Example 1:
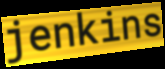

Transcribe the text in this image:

jenkins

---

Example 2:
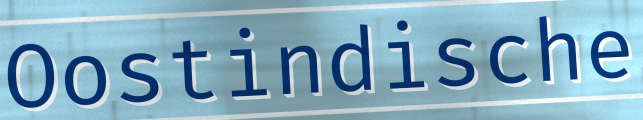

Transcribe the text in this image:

Oostindische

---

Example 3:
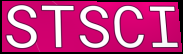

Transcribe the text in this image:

STSCI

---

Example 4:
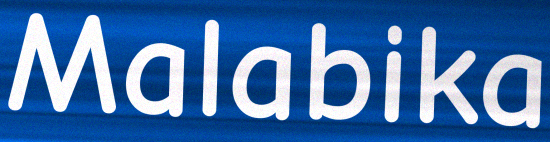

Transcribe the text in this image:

Malabika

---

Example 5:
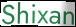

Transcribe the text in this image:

Shixan